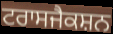
ਟਰਾਸਜੈਕਸ਼ਨ